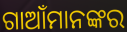
ଗାଆଁମାନଙ୍କର